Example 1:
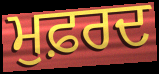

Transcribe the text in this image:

ਮੁਫ਼ਰਦ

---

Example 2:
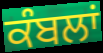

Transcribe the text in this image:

ਕੰਬਲਾਂ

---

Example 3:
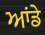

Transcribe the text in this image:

ਆਂਡੇ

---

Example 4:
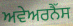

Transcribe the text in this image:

ਅਵੇਅਰਨੈੱਸ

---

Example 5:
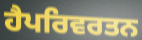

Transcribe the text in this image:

ਹੈਪਰਿਵਰਤਨ